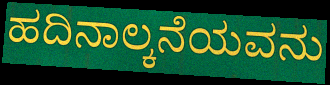
ಹದಿನಾಲ್ಕನೆಯವನು